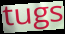
tugs